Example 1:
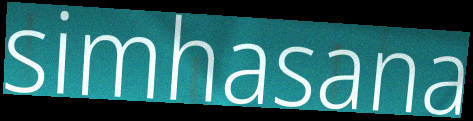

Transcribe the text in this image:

simhasana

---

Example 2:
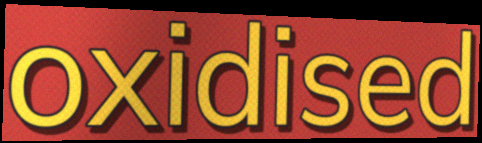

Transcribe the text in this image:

oxidised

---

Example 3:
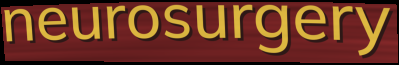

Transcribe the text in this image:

neurosurgery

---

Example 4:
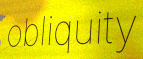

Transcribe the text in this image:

obliquity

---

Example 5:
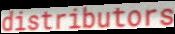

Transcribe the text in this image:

distributors